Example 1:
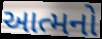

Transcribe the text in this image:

આત્મનો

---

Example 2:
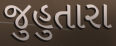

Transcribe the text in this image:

જુહુતારા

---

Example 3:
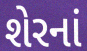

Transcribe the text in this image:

શેરનાં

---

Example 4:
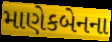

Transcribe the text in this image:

માણેકબેનના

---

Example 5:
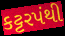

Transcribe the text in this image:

કટ્ટરપંથી